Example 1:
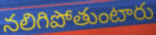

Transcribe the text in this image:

నలిగిపోతుంటారు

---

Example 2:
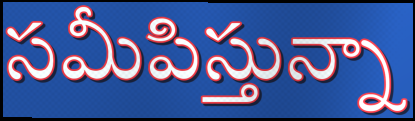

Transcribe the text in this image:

సమీపిస్తున్నా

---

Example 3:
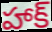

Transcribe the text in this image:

హాక్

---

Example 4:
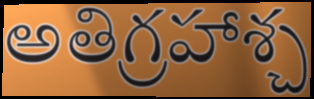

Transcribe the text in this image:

అతిగ్రహాశ్చ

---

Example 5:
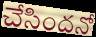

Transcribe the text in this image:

చేసిందనో